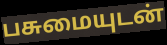
பசுமையுடன்